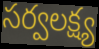
సర్వలక్ష్య